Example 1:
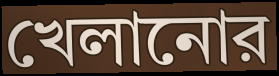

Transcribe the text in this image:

খেলানোর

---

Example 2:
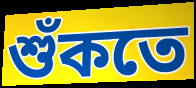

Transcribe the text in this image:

শুঁকতে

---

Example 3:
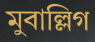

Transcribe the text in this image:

মুবাল্লিগ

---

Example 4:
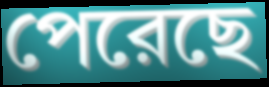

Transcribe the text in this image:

পেরেছে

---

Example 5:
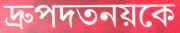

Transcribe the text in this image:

দ্রুপদতনয়কে